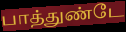
பாத்துண்டே